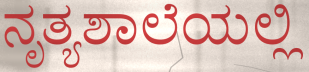
ನೃತ್ಯಶಾಲೆಯಲ್ಲಿ